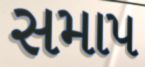
સમાપ